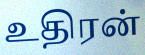
உதிரன்